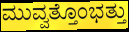
ಮುವ್ವತ್ತೊಂಭತ್ತು